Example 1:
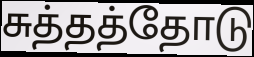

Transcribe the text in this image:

சுத்தத்தோடு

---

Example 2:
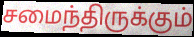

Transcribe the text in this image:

சமைந்திருக்கும்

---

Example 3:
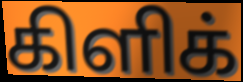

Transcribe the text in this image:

கிளிக்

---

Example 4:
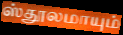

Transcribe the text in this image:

ஸ்தூலமாயும்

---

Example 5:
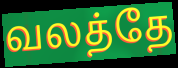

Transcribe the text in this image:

வலத்தே